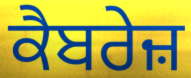
ਕੈਬਰੇਜ਼